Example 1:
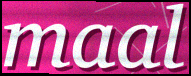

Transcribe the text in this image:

maal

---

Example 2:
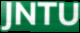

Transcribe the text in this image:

JNTU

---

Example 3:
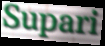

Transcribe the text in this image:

Supari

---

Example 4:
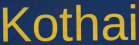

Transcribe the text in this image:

Kothai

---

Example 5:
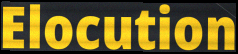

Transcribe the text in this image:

Elocution